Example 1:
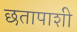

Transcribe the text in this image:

छतापाशी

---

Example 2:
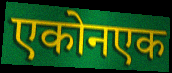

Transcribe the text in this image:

एकोनएक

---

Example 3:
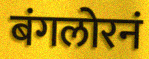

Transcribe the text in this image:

बंगलोरनं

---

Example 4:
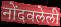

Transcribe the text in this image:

नोंदवलेली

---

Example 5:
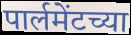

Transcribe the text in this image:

पार्लमेंटच्या